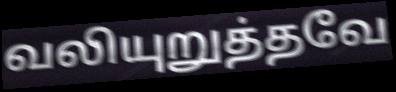
வலியுறுத்தவே